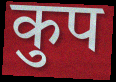
कुप